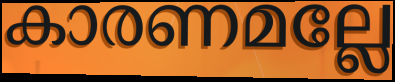
കാരണമല്ലേ